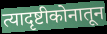
त्यादृष्टीकोनातून